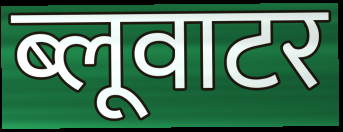
ब्लूवाटर